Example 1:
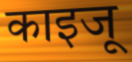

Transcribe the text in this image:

काइजू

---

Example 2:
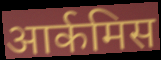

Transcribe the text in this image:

आर्कमिस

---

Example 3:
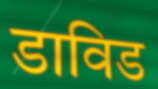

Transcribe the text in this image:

डाविड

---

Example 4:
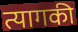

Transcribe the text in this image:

त्यागकी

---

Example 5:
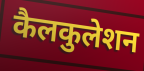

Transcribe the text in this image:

कैलकुलेशन